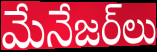
మేనేజర్‌లు